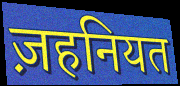
ज़हनियत